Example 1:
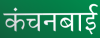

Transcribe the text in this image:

कंचनबाई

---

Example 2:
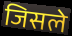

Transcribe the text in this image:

जिसले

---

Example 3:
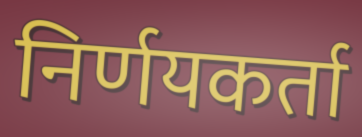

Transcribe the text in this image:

निर्णयकर्ता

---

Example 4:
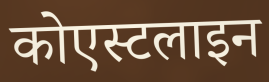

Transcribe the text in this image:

कोएस्टलाइन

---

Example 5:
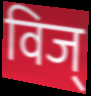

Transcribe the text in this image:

विज्